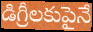
డిగ్రీలకుపైనే